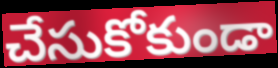
చేసుకోకుండా